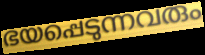
ഭയപ്പെടുന്നവരും